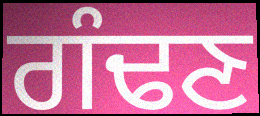
ਗੰਢਣ